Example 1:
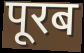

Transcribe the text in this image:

पूरब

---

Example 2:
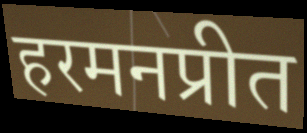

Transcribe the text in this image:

हरमनप्रीत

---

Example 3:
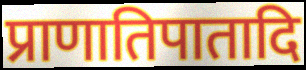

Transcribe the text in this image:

प्राणातिपातादि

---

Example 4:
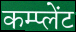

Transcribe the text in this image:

कम्प्लेंट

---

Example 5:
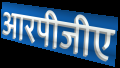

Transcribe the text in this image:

आरपीजीए